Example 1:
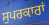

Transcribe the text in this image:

ਸੁਪਰਕਾਰਾਂ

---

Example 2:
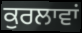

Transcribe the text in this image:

ਕੁਰਲਾਵਾਂ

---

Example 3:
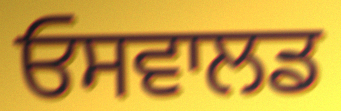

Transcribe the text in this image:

ਓਸਵਾਲਡ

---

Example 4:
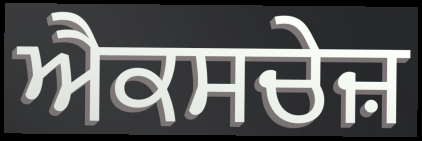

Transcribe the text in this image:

ਐਕਸਚੇਜ਼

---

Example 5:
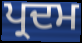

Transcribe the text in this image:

ਪ੍ਰਦਮ